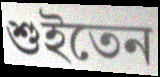
শুইতেন